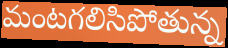
మంటగలిసిపోతున్న